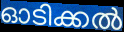
ഓടിക്കൽ